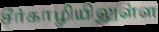
சீர்காழியிலுள்ள